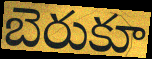
బెరుకూ